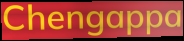
Chengappa